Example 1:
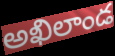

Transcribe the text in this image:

అఖిలాండ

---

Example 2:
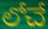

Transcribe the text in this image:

లోచే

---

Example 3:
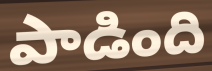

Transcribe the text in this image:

పాడింది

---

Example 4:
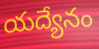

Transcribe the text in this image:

యద్యేనం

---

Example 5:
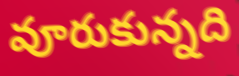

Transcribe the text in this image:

వూరుకున్నది